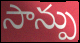
సాన్పు